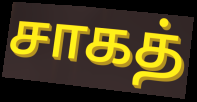
சாகத்